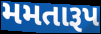
મમતારૂપ